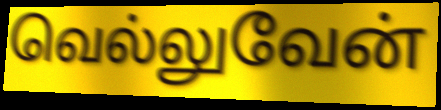
வெல்லுவேன்